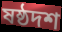
ষষ্ঠদশ